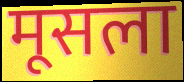
मूसला